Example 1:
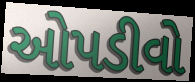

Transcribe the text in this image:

ઓપડીવો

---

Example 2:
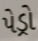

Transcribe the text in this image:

પેડ્રો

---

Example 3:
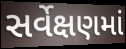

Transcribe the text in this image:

સર્વેક્ષણમાં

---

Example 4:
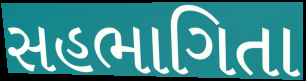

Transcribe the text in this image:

સહભાગિતા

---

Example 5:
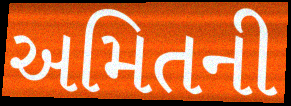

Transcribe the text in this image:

અમિતની